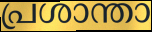
പ്രശാന്താ